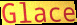
Glace